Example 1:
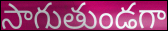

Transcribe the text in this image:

సాగుతుండగా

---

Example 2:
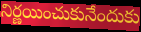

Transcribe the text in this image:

నిర్ణయించుకునేందుకు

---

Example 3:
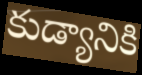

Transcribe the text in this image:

కుడ్యానికి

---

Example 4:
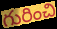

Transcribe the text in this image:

గురించి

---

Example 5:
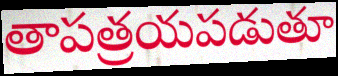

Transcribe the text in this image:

తాపత్రయపడుతూ